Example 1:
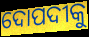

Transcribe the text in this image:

ଦୋପଦୀକୁ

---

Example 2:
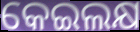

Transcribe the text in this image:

କେଇଲକ୍ଷ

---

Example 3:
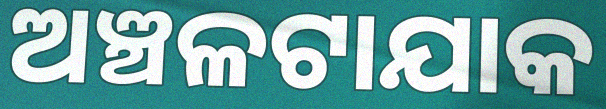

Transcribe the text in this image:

ଅଞ୍ଚଳଟାଯାକ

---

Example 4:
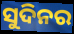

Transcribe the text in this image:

ସୁଦିନର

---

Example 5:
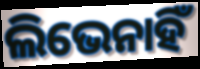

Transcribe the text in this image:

ଲିଭେନାହିଁ